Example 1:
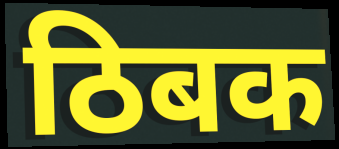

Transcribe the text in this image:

ठिबक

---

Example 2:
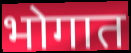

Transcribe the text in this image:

भोगात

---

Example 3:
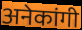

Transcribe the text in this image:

अनेकांगी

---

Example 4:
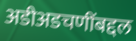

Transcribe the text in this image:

अडीअडचणींबद्दल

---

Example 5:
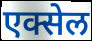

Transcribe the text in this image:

एक्सेल